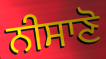
ਨੀਸਾਣੋ